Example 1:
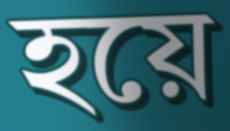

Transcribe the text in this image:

হয়ে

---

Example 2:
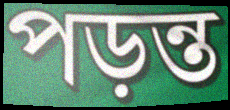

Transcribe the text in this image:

পড়ন্ত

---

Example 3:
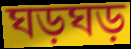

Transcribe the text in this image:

ঘড়ঘড়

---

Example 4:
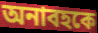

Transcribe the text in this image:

অনাবহকে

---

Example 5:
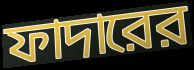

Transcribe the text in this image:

ফাদারের